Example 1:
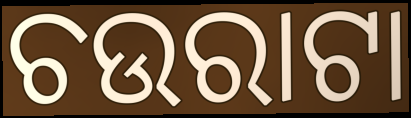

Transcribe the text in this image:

ଚଉରାଟା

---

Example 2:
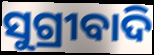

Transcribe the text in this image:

ସୁଗ୍ରୀବାଦି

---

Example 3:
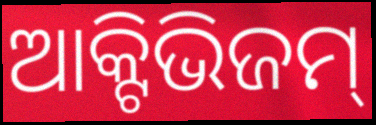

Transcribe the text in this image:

ଆକ୍ଟିଭିଜମ୍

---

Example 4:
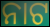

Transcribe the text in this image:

ନାଟ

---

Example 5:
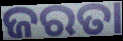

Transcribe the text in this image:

ଜରତା